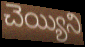
చెయ్యిని